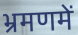
भ्रमणमें